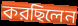
করছিলেন